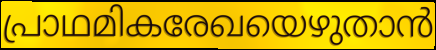
പ്രാഥമികരേഖയെഴുതാൻ